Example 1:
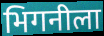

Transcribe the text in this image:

भिगनीला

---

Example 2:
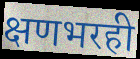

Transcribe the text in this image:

क्षणभरही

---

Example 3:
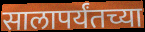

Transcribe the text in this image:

सालापर्यंतच्या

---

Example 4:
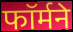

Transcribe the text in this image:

फॉर्मने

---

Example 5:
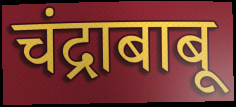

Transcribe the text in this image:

चंद्राबाबू